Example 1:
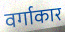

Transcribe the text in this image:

वर्गाकार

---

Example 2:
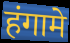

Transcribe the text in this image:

हंगामे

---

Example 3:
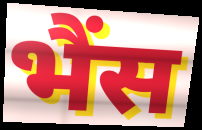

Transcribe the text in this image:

भैंस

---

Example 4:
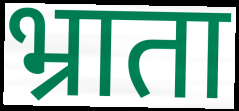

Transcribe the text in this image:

भ्राता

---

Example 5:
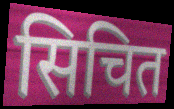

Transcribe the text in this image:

सिचित